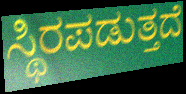
ಸ್ಥಿರಪಡುತ್ತದೆ